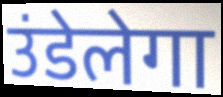
उंडेलेगा